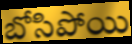
బోసిపోయి